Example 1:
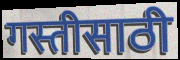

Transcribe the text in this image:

गस्तीसाठी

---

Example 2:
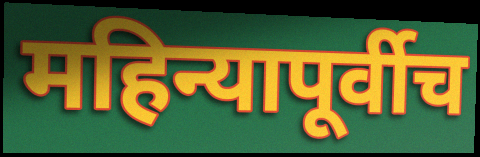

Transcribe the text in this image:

महिन्यापूर्वीच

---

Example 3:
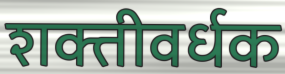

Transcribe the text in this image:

शक्तीवर्धक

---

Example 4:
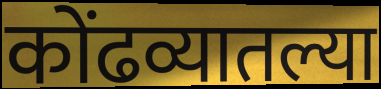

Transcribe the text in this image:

कोंढव्यातल्या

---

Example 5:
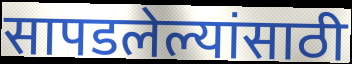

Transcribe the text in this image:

सापडलेल्यांसाठी